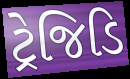
ટ્રેજિડિ